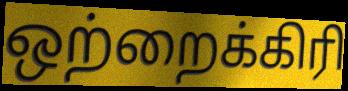
ஒற்றைக்கிரி